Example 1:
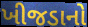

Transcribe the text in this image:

ખીજડાનો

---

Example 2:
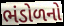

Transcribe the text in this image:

ભંડોળનો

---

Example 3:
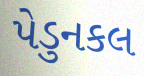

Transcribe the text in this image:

પેડુનકલ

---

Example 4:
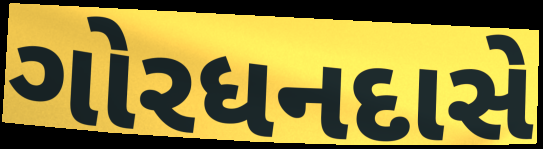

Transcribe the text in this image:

ગોરધનદાસે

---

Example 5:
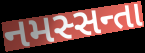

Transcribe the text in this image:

નમસ્સન્તા